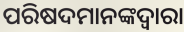
ପରିଷଦମାନଙ୍କଦ୍ୱାରା